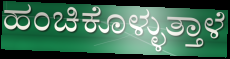
ಹಂಚಿಕೊಳ್ಳುತ್ತಾಳೆ